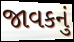
જાવકનું